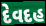
દેવદહ